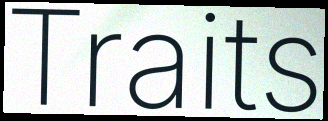
Traits